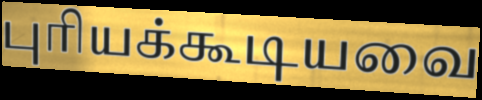
புரியக்கூடியவை